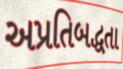
અપ્રતિબદ્ધતા